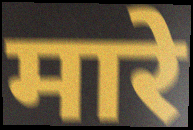
मारे